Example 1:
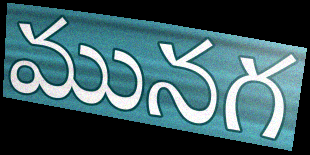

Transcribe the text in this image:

మునగ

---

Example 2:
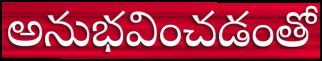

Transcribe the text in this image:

అనుభవించడంతో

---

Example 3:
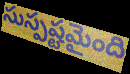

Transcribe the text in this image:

సుస్పష్టమైంది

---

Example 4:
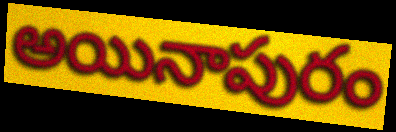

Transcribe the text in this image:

అయినాపురం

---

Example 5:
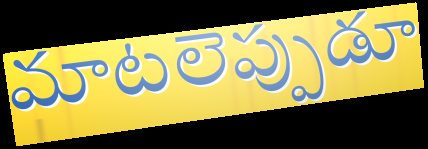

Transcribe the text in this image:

మాటలెప్పుడూ